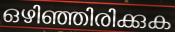
ഒഴിഞ്ഞിരിക്കുക